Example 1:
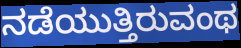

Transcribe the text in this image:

ನಡೆಯುತ್ತಿರುವಂಥ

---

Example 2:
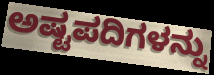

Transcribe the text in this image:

ಅಷ್ಟಪದಿಗಳನ್ನು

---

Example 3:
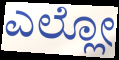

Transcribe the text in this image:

ಎಲ್ಲೋ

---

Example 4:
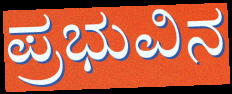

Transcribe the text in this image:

ಪ್ರಭುವಿನ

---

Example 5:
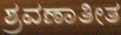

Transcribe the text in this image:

ಶ್ರವಣಾತೀತ